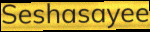
Seshasayee